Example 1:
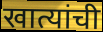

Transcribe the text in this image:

खात्यांची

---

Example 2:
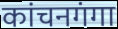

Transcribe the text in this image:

कांचनगंगा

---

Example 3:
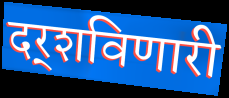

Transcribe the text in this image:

दर्शविणारी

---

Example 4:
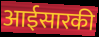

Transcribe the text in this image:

आईसारकी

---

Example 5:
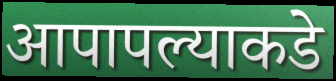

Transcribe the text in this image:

आपापल्याकडे